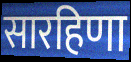
सारहिणा